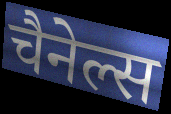
चैनेल्स